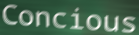
Concious